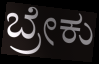
ಬ್ರೇಕು